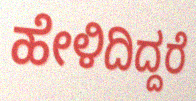
ಹೇಳಿದಿದ್ದರೆ